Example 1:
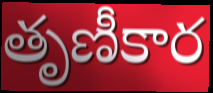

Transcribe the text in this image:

తృణీకార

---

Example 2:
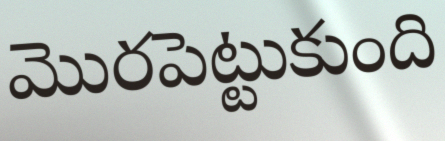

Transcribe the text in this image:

మొరపెట్టుకుంది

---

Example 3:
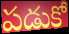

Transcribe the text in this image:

పడుకో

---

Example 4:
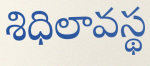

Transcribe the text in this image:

శిధిలావస్థ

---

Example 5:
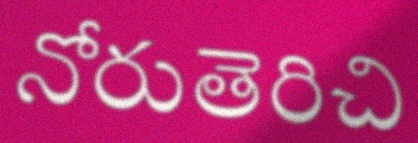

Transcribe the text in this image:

నోరుతెరిచి